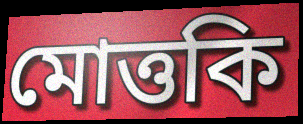
মোত্তকি